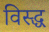
विस्द्ध